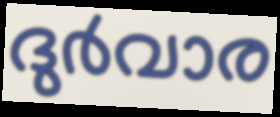
ദുർവാര